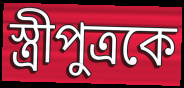
স্ত্রীপুত্রকে